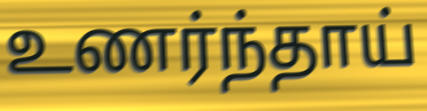
உணர்ந்தாய்